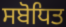
ਸਬੋਧਿਤ